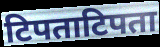
टिपताटिपता